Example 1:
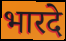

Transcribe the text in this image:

भारदे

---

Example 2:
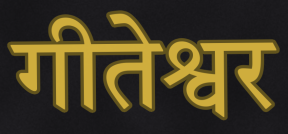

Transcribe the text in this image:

गीतेश्वर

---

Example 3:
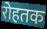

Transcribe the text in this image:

रोहतक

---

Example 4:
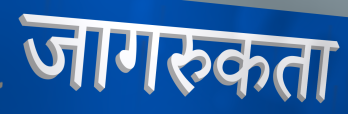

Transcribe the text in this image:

जागरुकता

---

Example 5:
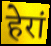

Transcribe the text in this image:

हेरां